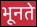
भूनते